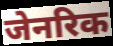
जेनरिक